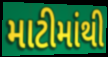
માટીમાંથી